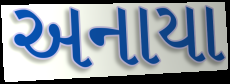
અનાયા